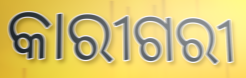
କାରୀଗରୀ